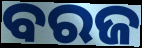
ବରଜ